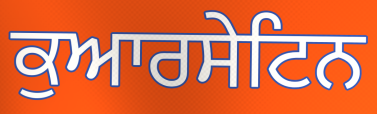
ਕੁਆਰਸੇਟਿਨ